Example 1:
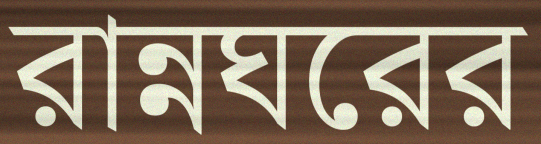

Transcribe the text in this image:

রান্নঘরের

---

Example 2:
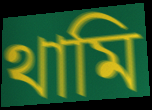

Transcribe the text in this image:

থামি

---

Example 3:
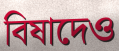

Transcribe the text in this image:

বিষাদেও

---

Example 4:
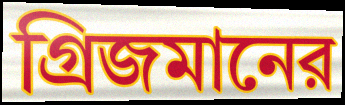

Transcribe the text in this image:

গ্রিজমানের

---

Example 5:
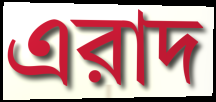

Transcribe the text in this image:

এরাদ